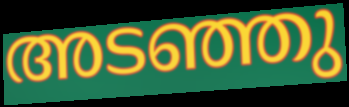
അടഞ്ഞു